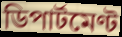
ডিপাৰ্টমেণ্ট